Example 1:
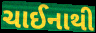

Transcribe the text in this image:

ચાઈનાથી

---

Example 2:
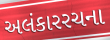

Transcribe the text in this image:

અલંકારરચના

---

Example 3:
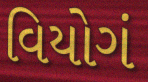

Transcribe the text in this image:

વિયોગં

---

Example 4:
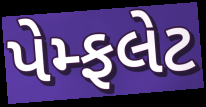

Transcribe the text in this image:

પેમ્ફલેટ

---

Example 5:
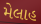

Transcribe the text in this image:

મેલાહ